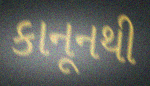
કાનૂનથી